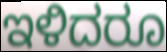
ಇಳಿದರೂ